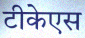
टीकेएस